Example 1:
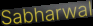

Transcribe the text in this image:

Sabharwal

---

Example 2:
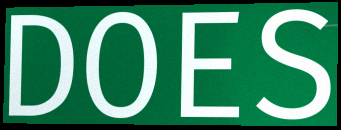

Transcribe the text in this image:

DOES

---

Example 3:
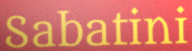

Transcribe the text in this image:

Sabatini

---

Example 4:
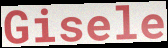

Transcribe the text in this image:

Gisele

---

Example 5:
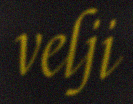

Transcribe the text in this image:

velji